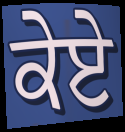
ਕੇਏ